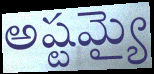
అష్టమ్యై